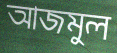
আজমুল